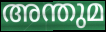
അന്തുമ